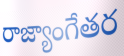
రాజ్యాంగేతర